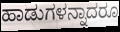
ಹಾಡುಗಳನ್ನಾದರೂ